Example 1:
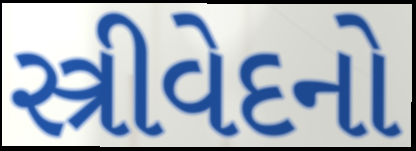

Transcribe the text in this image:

સ્ત્રીવેદનો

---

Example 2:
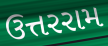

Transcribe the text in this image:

ઉત્તરરામ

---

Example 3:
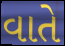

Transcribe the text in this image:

વાતે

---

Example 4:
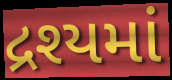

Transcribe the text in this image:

દ્રશ્યમાં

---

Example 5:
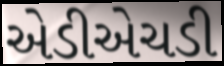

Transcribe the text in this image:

એડીએચડી